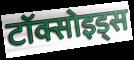
टॉक्सोइड्स